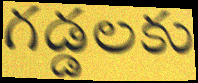
గడ్డలకు